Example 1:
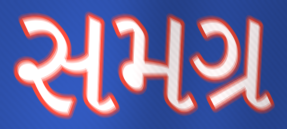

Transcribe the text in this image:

સમગ્ર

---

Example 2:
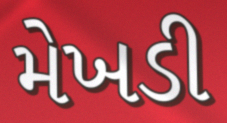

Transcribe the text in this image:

મેખડી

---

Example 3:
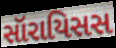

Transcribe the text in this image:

સૉરાયિસસ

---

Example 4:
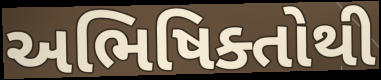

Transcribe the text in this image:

અભિષિક્તોથી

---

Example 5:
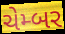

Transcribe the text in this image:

ચેમ્બર